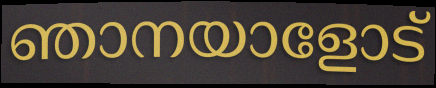
ഞാനയാളോട്